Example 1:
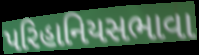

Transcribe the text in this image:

પરિહાનિયસભાવા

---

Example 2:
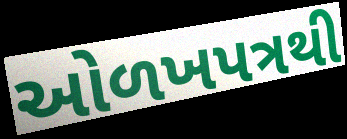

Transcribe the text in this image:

ઓળખપત્રથી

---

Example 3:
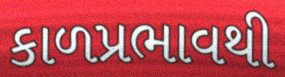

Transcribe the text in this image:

કાળપ્રભાવથી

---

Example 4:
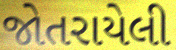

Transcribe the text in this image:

જોતરાયેલી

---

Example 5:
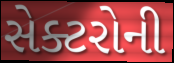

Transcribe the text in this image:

સેક્ટરોની